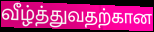
வீழ்த்துவதற்கான